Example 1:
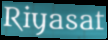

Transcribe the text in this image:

Riyasat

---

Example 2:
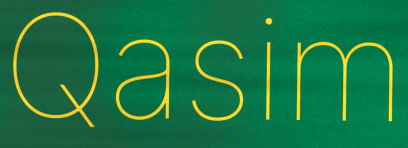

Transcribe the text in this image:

Qasim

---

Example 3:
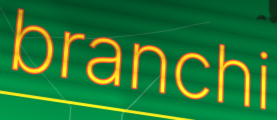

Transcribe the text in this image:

branchi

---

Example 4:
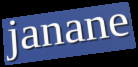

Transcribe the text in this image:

janane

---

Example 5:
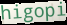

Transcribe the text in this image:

higopi